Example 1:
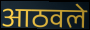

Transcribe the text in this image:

आठवले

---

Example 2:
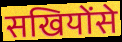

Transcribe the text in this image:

सखियोंसे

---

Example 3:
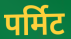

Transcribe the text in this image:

पर्मिट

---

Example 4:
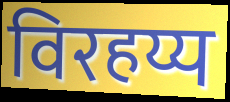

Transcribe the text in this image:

विरहय्य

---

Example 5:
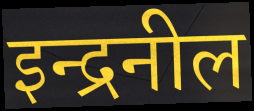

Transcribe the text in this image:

इन्द्रनील